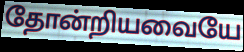
தோன்றியவையே